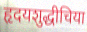
हृदयशुद्धीचिया